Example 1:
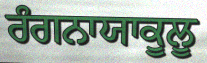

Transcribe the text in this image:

ਰੰਗਨਾਯਾਕੂਲੂ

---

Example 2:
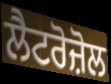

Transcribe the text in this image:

ਲੈਟਰੋਜ਼ੋਲ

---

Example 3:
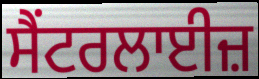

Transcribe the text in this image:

ਸੈਂਟਰਲਾਈਜ਼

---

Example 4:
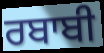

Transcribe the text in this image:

ਰਬਾਬੀ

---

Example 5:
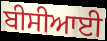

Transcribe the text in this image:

ਬੀਸੀਆਈ